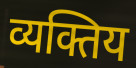
व्यक्तिय